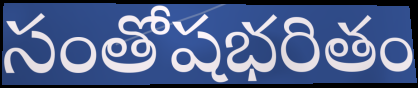
సంతోషభరితం